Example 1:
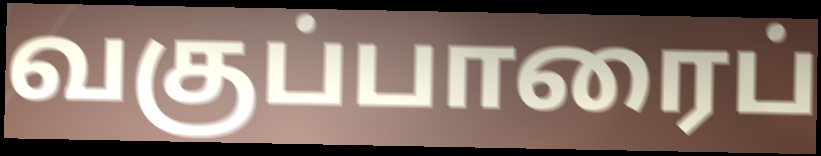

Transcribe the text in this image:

வகுப்பாரைப்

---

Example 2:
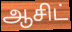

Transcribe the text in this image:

ஆசிட்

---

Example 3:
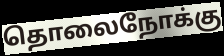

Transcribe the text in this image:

தொலைநோக்கு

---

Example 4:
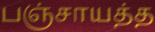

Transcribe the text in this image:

பஞ்சாயத்த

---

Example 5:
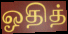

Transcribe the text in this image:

ஓதித்